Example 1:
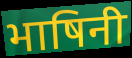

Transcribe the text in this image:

भाषिनी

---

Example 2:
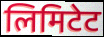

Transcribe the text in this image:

लिमिटेट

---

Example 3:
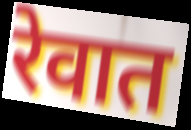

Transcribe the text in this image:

रेवात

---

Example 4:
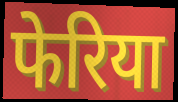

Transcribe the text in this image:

फेरिया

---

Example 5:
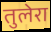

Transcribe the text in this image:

तुलेरा